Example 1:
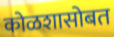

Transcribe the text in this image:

कोळशासोबत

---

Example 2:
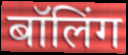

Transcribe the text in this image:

बॉलिंग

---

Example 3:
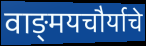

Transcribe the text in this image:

वाङ्मयचौर्याचे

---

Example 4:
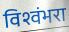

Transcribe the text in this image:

विश्वंभरा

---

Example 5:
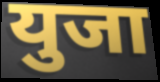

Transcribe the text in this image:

युजा